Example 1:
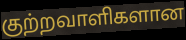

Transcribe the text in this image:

குற்றவாளிகளான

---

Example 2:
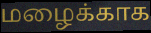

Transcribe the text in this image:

மழைக்காக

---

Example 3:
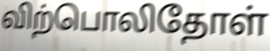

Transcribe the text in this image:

விற்பொலிதோள்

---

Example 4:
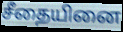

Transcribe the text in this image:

சீதையினை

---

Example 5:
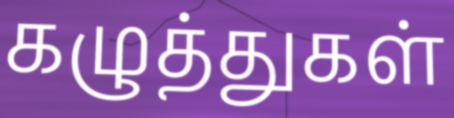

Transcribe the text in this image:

கழுத்துகள்